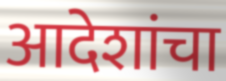
आदेशांचा